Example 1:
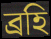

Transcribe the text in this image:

ব্রহি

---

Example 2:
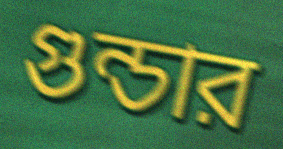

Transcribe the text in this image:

গুন্ডার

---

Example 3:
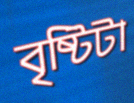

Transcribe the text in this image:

বৃষ্টিটা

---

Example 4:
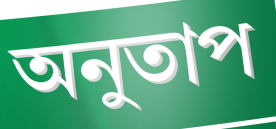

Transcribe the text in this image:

অনুতাপ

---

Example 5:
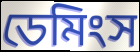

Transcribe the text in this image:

ডেমিংস